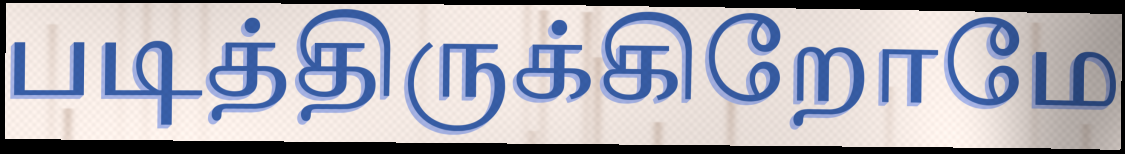
படித்திருக்கிறோமே